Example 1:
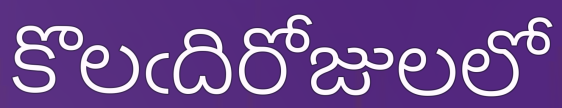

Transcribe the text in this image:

కొలఁదిరోజులలో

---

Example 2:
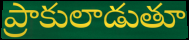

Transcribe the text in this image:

ప్రాకులాడుతూ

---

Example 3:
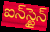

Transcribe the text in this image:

ఐన్‌స్టైన్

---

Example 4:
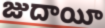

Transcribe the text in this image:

జుదాయీ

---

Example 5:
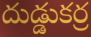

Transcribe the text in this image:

దుడ్డుకర్ర